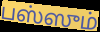
பஸ்ஸும்